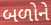
બળોને